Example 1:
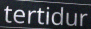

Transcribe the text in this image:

tertidur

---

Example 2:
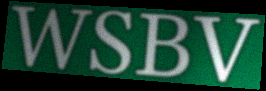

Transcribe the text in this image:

WSBV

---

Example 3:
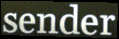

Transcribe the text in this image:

sender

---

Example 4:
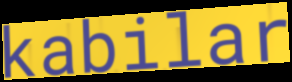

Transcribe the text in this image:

kabilar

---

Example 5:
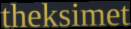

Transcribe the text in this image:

theksimet